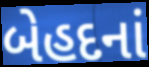
બેહદનાં